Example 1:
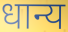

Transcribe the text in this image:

धान्य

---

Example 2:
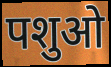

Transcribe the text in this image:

पशुओ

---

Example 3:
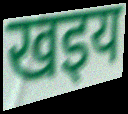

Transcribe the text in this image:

खइय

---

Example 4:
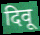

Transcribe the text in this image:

दिवू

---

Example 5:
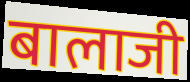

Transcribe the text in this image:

बालाजी